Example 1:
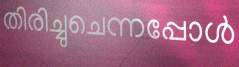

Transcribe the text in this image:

തിരിച്ചുചെന്നപ്പോൾ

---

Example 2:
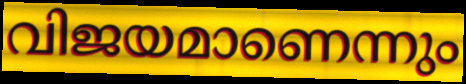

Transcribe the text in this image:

വിജയമാണെന്നും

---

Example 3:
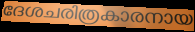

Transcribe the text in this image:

ദേശചരിത്രകാരനായ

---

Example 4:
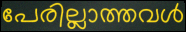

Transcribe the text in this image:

പേരില്ലാത്തവൾ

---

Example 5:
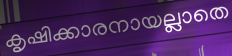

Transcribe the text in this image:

കൃഷിക്കാരനായല്ലാതെ